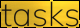
tasks